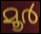
മൂർ